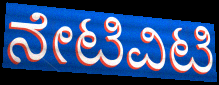
ನೇಟಿವಿಟಿ